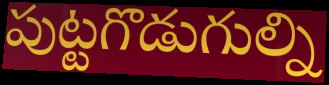
పుట్టగొడుగుల్ని